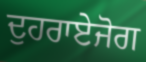
ਦੁਹਰਾਏਜੋਗ